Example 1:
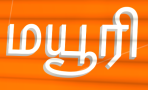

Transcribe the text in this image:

மயூரி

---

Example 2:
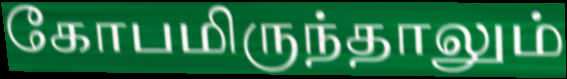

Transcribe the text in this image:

கோபமிருந்தாலும்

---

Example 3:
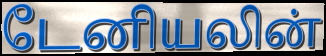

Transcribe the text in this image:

டேனியலின்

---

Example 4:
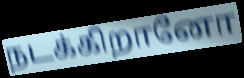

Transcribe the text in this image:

நடக்கிறானோ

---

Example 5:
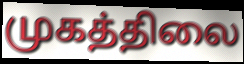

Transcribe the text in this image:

முகத்திலை